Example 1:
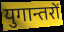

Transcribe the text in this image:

युगान्तरों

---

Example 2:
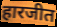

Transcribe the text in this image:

हारजीत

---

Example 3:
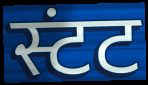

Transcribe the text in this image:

स्टंट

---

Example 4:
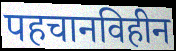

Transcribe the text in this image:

पहचानविहीन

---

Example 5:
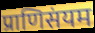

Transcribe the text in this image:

प्राणिसंयम